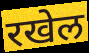
रखेल